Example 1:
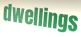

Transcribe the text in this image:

dwellings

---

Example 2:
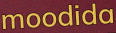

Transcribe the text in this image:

moodida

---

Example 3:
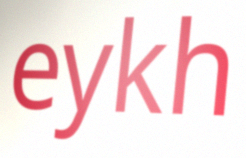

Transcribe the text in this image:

eykh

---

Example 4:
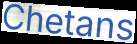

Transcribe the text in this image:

Chetans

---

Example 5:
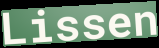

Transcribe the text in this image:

Lissen